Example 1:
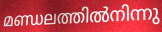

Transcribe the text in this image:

മണ്ഡലത്തിൽനിന്നു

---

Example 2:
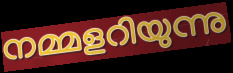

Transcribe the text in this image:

നമ്മളറിയുന്നു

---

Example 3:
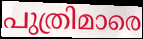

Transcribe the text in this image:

പുത്രിമാരെ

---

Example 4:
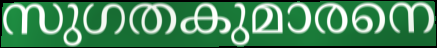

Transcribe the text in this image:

സുഗതകുമാരനെ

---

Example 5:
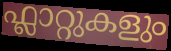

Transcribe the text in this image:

ഫ്ലാറ്റുകളും